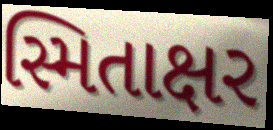
સ્મિતાક્ષર